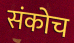
संकोच